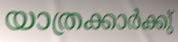
യാത്രക്കാർക്കു്